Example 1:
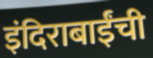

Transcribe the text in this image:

इंदिराबाईंची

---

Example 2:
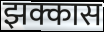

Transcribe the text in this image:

झक्कास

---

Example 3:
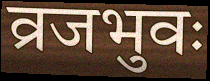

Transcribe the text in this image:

व्रजभुवः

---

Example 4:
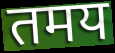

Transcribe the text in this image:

तमय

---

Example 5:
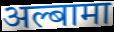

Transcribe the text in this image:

अल्बामा